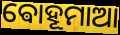
ଵୋହୂମାଆ